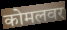
कोमलवर